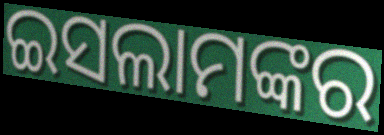
ଇସଲାମଙ୍କର